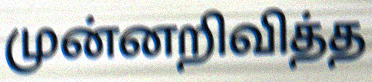
முன்னறிவித்த